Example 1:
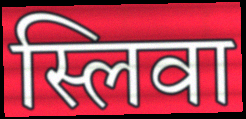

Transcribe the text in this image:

स्लिवा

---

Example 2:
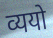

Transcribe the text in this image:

व्ययो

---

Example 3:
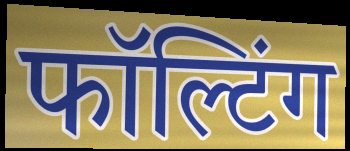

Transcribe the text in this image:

फॉल्टिंग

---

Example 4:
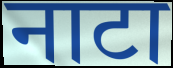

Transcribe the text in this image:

नाटा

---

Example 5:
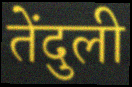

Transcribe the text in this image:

तेंदुली